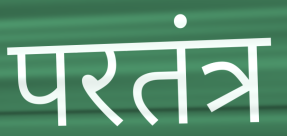
परतंत्र